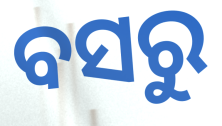
ବସରୁ